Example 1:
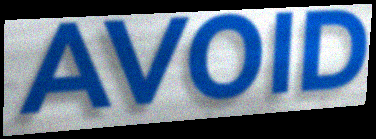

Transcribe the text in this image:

AVOID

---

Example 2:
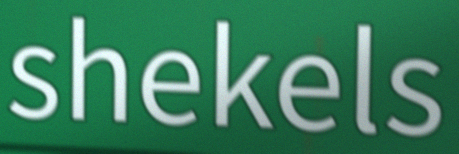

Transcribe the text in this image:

shekels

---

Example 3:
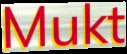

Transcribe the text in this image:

Mukt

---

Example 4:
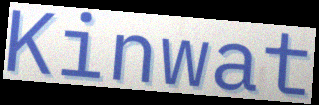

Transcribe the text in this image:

Kinwat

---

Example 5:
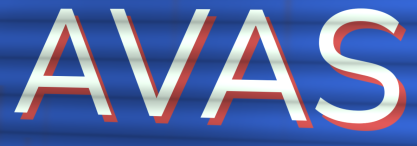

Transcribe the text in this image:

AVAS